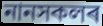
নানসকলৰ